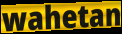
wahetan